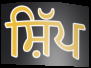
ਸ਼ਿੱਪ